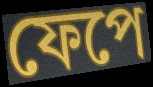
ফেপে